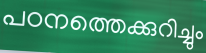
പഠനത്തെക്കുറിച്ചും